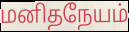
மனிதநேயம்